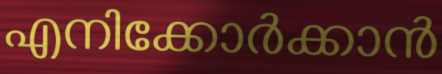
എനിക്കോർക്കാൻ